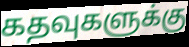
கதவுகளுக்கு